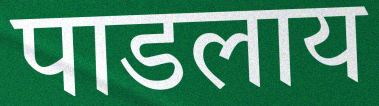
पाडलाय